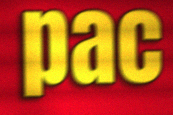
pac